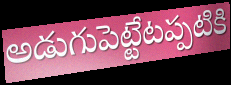
అడుగుపెట్టేటప్పటికి